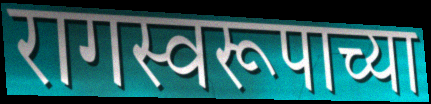
रागस्वरूपाच्या